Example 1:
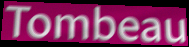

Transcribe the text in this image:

Tombeau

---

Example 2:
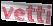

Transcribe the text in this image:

vetti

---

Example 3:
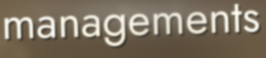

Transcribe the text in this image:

managements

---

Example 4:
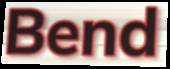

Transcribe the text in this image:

Bend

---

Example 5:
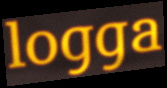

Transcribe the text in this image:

logga